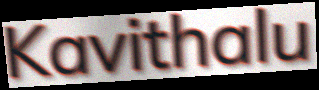
Kavithalu